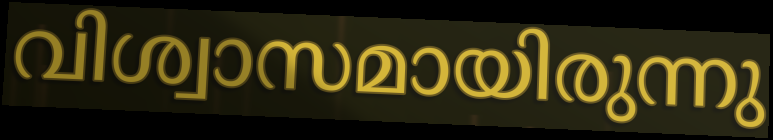
വിശ്വാസമായിരുന്നു